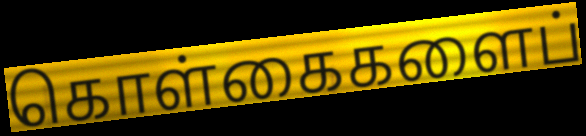
கொள்கைகளைப்